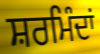
ਸ਼ਰਮਿੰਦਾਂ